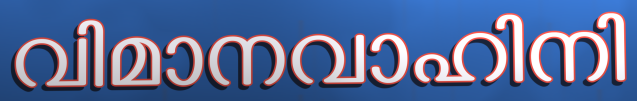
വിമാനവാഹിനി